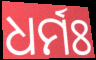
ଧର୍ମଃ